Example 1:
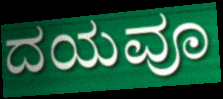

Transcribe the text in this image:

ದಯವೂ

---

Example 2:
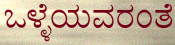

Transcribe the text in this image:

ಒಳ್ಳೆಯವರಂತೆ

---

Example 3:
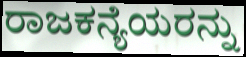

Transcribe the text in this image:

ರಾಜಕನ್ಯೆಯರನ್ನು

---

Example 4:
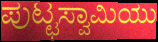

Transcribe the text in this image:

ಪುಟ್ಟಸ್ವಾಮಿಯು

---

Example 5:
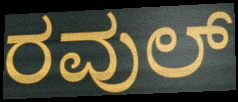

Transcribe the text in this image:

ರವುಲ್